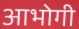
आभोगी